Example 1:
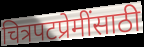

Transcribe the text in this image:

चित्रपटप्रेमींसाठी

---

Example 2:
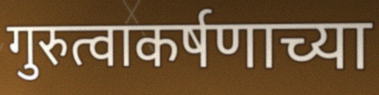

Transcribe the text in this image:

गुरुत्वाकर्षणाच्या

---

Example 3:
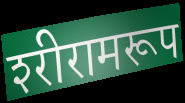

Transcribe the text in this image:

श्रीरामरूप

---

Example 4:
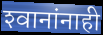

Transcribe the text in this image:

श्वानांनाही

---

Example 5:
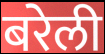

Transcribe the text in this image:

बरेली